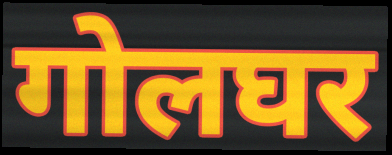
गोलघर